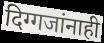
दिग्गजांनाही